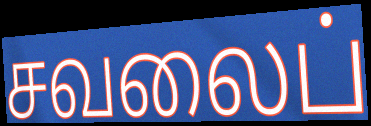
சவலைப்